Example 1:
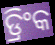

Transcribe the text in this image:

ଡ୍ରିଂକ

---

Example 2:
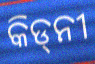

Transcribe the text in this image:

କିଡ୍‌ନୀ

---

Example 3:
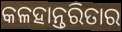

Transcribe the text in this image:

କଳହାନ୍ତରିତାର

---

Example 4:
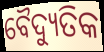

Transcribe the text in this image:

ବୈଦ୍ୟୁତିକ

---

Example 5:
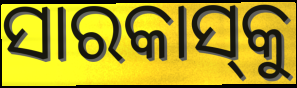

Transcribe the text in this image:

ସାରକାସ୍‌କୁ